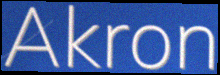
Akron